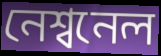
নেশ্বনেল